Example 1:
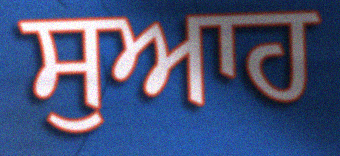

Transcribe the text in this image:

ਸੁਆਹ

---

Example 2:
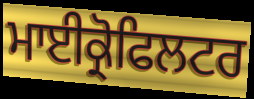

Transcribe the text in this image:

ਮਾਈਕ੍ਰੋਫਿਲਟਰ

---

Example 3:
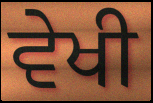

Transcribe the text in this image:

ਵੇਖੀ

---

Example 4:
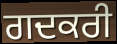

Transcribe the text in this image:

ਗਦਕਰੀ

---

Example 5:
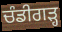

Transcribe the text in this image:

ਚੰਡੀਗੜ੍ਹ